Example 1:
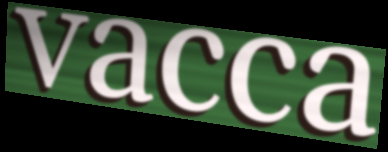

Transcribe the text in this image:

vacca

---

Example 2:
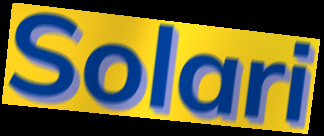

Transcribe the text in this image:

Solari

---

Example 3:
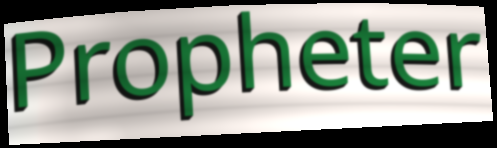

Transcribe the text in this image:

Propheter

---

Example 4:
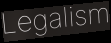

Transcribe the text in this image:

Legalism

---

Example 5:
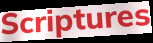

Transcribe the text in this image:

Scriptures